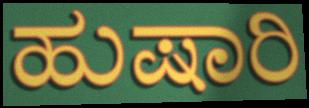
ಹುಷಾರಿ